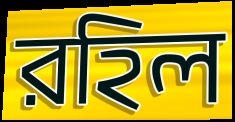
রহিল